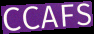
CCAFS